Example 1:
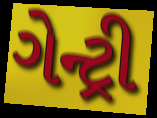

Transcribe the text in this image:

ગેન્ટ્રી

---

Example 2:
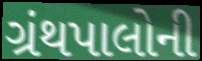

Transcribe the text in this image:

ગ્રંથપાલોની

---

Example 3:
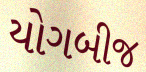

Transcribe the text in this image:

યોગબીજ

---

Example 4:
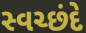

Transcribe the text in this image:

સ્વચ્છંદે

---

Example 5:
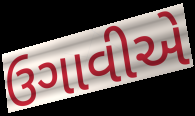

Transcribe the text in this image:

ઉગાવીએ